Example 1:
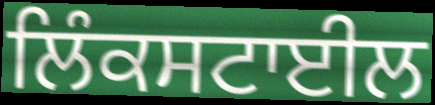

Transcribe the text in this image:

ਲਿੰਕਸਟਾਈਲ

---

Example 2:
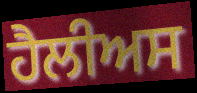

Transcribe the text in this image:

ਹੈਲੀਅਸ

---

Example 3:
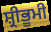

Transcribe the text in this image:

ਸ਼੍ਰੀਭੂਮੀ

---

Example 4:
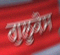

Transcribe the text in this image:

ਗੁਲੂਕੋਸ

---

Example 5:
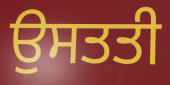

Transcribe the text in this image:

ਉਸਤਤੀ